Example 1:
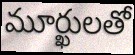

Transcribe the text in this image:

మూర్ఖులతో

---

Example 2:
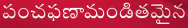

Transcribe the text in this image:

పంచఫణామండితమైన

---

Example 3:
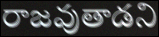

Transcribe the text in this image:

రాజవుతాడని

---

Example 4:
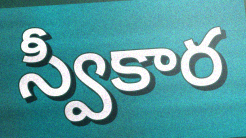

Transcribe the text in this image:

స్వీకార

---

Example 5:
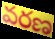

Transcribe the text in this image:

వరణ